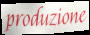
produzione